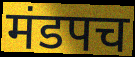
मंडपच